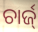
ଚାର୍ଜ୍